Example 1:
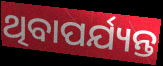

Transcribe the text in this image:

ଥିବାପର୍ଯ୍ୟନ୍ତ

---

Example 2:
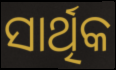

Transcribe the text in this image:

ସାର୍ଥିକ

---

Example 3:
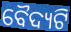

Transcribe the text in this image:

ବୈଦ୍ୟଟି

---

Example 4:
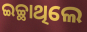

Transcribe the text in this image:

ଇଚ୍ଛାଥିଲେ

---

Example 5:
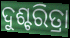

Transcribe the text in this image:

ଦୁଶ୍ଚରିତ୍ରା